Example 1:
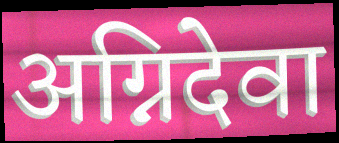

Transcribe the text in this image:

अग्निदेवा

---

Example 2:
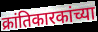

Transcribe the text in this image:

क्रांतिकारकांच्या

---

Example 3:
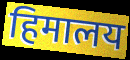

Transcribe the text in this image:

हिमालय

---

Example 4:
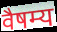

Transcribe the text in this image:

वैषम्य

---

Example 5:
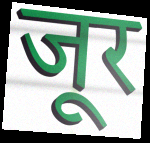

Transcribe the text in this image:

जूर